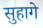
सुहागे